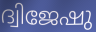
ദ്വിജേഷു